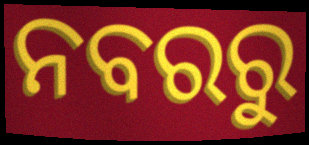
ନବରରୁ